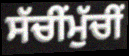
ਸੱਚੀਂਮੁੱਚੀਂ